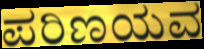
ಪರಿಣಯವ